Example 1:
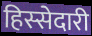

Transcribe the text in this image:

हिस्‍सेदारी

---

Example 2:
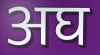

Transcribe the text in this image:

अघ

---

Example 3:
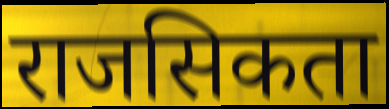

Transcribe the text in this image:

राजसिकता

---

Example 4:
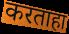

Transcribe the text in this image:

करताहा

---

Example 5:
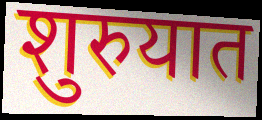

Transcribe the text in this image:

शुरुयात